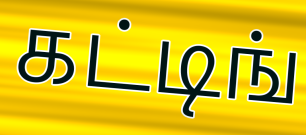
கட்டிங்